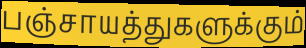
பஞ்சாயத்துகளுக்கும்